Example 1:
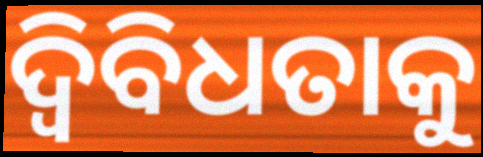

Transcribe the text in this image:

ଦ୍ୱିବିଧତାକୁ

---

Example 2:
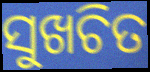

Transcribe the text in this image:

ସୁଖଚିତ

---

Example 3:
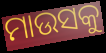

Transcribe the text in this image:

ମାଉସକୁ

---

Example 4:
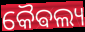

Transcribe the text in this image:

କୈଵଲ୍ୟ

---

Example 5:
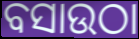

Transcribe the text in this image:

ବସାଉଠା